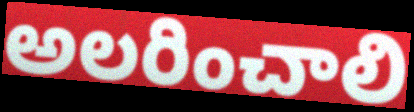
అలరించాలి